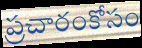
ప్రచారంకోసం